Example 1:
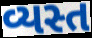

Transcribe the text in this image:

વ્યસ્ત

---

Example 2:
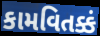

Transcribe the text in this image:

કામવિતક્કં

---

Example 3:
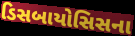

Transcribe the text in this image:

ડિસબાયોસિસના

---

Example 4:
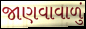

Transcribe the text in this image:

જાણવાવાળું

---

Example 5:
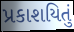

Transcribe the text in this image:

પ્રકાશયિતું